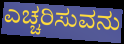
ಎಚ್ಚರಿಸುವನು